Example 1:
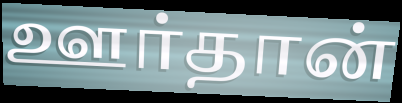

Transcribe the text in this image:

ஊர்தான்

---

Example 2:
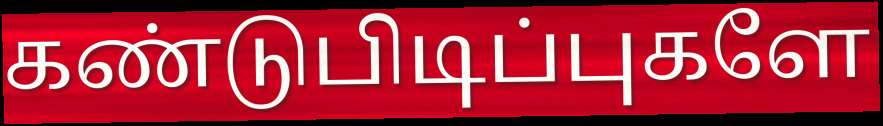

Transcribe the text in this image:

கண்டுபிடிப்புகளே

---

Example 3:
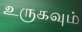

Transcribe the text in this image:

உருகவும்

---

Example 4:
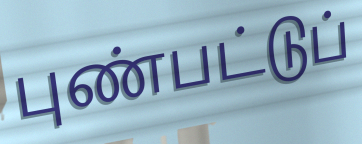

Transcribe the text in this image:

புண்பட்டுப்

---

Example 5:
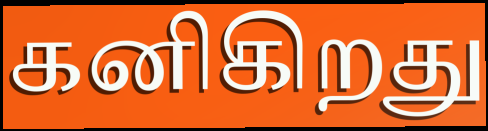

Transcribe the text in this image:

கனிகிறது